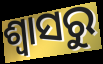
ଶ୍ୱାସରୁ